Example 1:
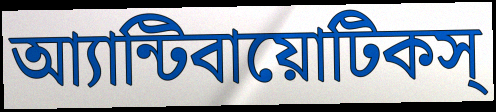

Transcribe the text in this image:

আ্যান্টিবায়োটিকস্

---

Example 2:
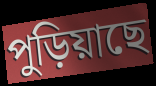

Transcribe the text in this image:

পুড়িয়াছে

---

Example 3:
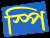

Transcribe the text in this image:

স্পি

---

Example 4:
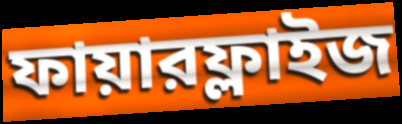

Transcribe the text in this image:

ফায়ারফ্লাইজ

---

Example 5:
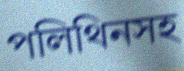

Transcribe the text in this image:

পলিথিনসহ